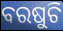
ବରଷୁଚି